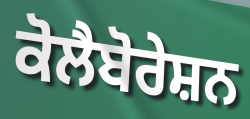
ਕੋਲੈਬੋਰੇਸ਼ਨ